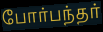
போர்பந்தர்